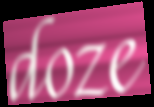
doze